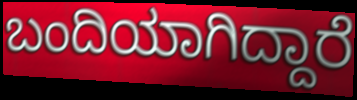
ಬಂದಿಯಾಗಿದ್ದಾರೆ